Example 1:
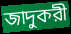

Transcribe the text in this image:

জাদুকরী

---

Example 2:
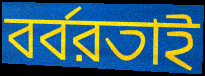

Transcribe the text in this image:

বর্বরতাই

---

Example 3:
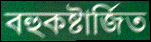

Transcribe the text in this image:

বহুকষ্টার্জিত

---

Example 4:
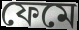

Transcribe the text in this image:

ফেমে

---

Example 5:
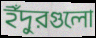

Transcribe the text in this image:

ইঁদুরগুলো